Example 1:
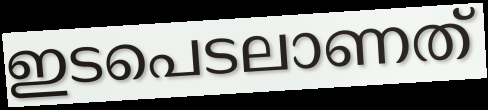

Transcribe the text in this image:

ഇടപെടലാണത്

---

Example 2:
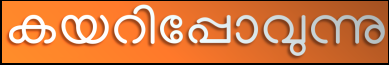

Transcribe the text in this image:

കയറിപ്പോവുന്നു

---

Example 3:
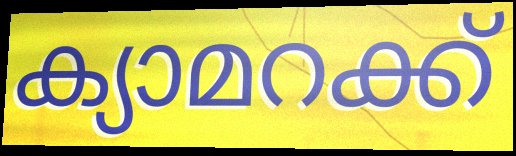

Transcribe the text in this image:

ക്യാമറക്ക്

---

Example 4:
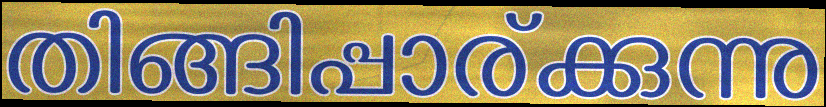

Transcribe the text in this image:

തിങ്ങിപ്പാര്ക്കുന്നു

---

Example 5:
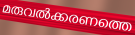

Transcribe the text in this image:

മരുവൽക്കരണത്തെ